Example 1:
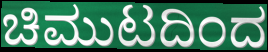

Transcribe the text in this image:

ಚಿಮುಟದಿಂದ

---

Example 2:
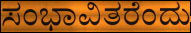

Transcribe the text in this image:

ಸಂಭಾವಿತರೆಂದು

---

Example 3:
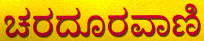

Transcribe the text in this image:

ಚರದೂರವಾಣಿ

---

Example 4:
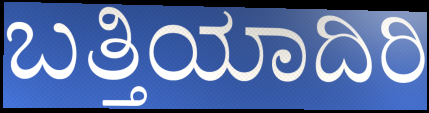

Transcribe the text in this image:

ಬತ್ತಿಯಾದಿರಿ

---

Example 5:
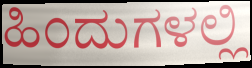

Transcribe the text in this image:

ಹಿಂದುಗಳಲ್ಲಿ